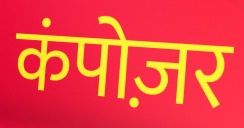
कंपोज़र